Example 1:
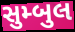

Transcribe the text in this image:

સુમ્બુલ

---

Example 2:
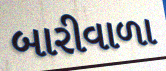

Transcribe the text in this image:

બારીવાળા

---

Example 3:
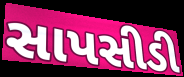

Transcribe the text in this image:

સાપસીડી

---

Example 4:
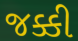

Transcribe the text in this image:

જક્કી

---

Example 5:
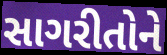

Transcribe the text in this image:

સાગરીતોને